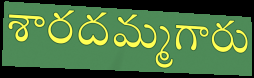
శారదమ్మగారు